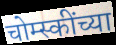
चोम्स्कींच्या